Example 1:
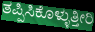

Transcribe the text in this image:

ತಪ್ಪಿಸಿಕೊಳ್ಳುತ್ತೀರಿ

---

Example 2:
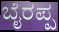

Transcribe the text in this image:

ಬೈರಪ್ಪ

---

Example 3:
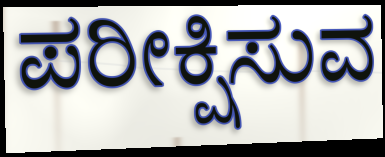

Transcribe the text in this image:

ಪರೀಕ್ಷಿಸುವ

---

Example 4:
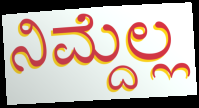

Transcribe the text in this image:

ನಿಮ್ದೆಲ್ಲ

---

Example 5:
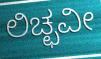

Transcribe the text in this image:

ಲಿಚ್ಛವೀ